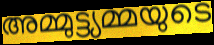
അമ്മുട്ട്യമ്മയുടെ